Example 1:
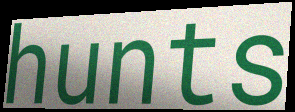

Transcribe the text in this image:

hunts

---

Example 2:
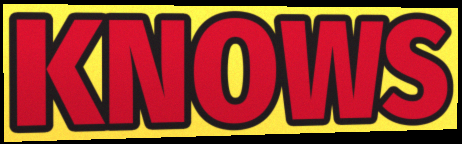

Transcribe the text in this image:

KNOWS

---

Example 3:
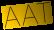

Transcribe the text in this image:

AAT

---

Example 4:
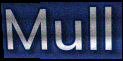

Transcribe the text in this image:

Mull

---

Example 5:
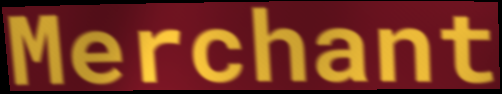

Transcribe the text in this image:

Merchant